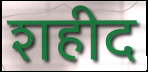
शहीद